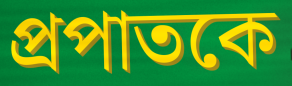
প্রপাতকে